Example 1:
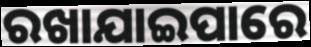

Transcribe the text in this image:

ରଖାଯାଇପାରେ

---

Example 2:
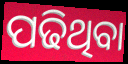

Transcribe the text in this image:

ପଢିଥିବା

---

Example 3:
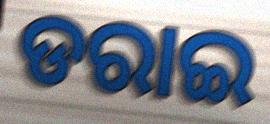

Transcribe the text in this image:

ଡରାଇ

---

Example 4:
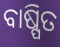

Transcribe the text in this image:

ବାଷ୍ପିତ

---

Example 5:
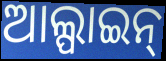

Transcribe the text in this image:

ଆଲ୍ପାଇନ୍